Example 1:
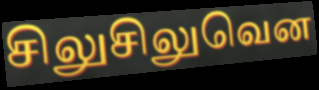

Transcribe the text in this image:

சிலுசிலுவென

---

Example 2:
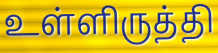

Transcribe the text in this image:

உள்ளிருத்தி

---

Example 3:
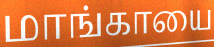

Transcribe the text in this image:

மாங்காயை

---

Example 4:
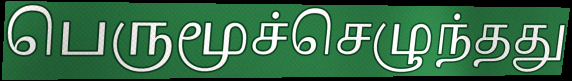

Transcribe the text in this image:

பெருமூச்செழுந்தது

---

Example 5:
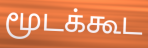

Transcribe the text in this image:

மூடக்கூட